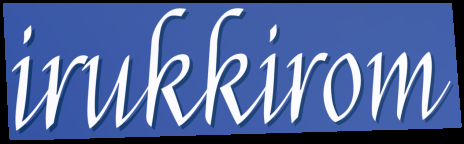
irukkirom